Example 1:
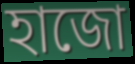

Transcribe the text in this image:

হাজো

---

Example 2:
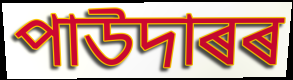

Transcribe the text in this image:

পাউদাৰৰ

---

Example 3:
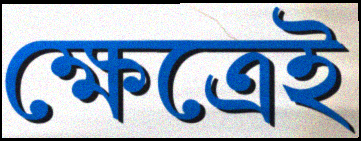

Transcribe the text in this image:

ক্ষেত্ৰেই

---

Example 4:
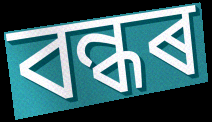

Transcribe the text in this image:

বন্ধৰ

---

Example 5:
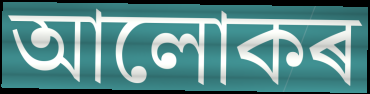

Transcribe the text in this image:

আলোকৰ